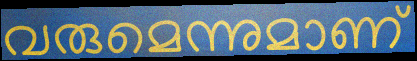
വരുമെന്നുമാണ്